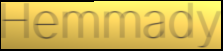
Hemmady